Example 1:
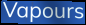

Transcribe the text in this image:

Vapours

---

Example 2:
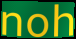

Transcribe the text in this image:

noh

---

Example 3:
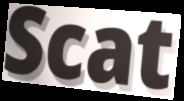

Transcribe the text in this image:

Scat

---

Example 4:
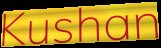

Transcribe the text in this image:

Kushan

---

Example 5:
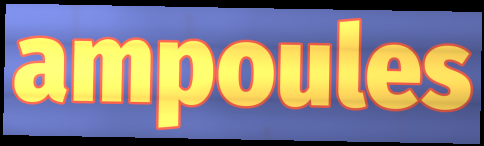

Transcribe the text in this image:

ampoules